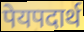
पेयपदार्थ